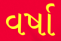
વર્ષા